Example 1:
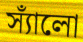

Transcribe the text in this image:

স্যাঁলো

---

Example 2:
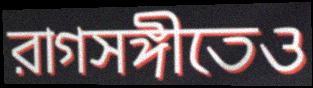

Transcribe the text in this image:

রাগসঙ্গীতেও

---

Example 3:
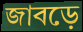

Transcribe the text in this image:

জাবড়ে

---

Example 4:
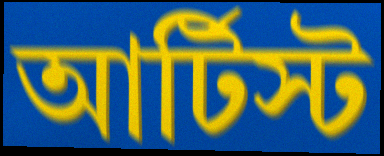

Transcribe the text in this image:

আর্টিস্ট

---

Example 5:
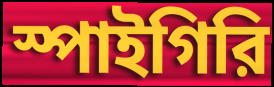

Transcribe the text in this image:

স্পাইগিরি